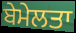
ਬੇਮੇਲਤਾ